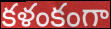
కళంకంగా